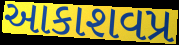
આકાશવપ્ર